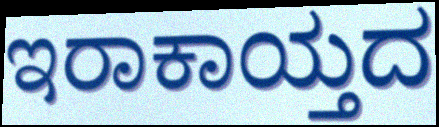
ಇರಾಕಾಯ್ತದ